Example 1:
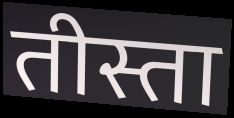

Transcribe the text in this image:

तीस्ता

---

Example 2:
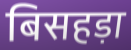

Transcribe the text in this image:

बिसहड़ा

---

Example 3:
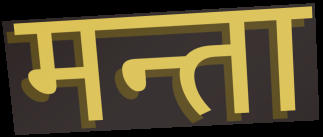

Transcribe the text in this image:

मन्ता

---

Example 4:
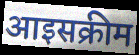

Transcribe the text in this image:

आइसक्रीम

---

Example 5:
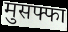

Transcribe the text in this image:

मुसफ्फा